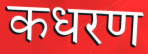
कधरण